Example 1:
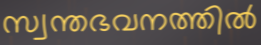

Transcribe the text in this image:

സ്വന്തഭവനത്തിൽ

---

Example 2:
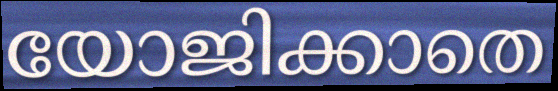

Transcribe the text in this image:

യോജിക്കാതെ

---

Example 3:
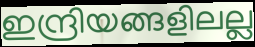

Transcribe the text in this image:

ഇന്ദ്രിയങ്ങളിലല്ല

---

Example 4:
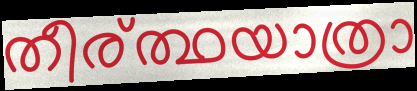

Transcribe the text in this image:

തീര്ത്ഥയാത്രാ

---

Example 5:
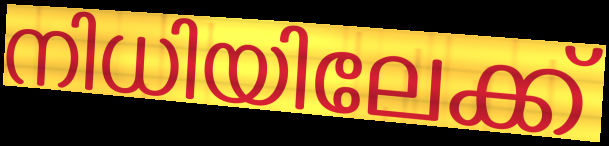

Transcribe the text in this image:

നിധിയിലേക്ക്